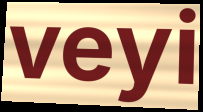
veyi